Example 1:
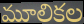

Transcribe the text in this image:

మూలికల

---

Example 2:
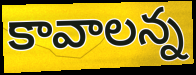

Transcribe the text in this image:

కావాలన్న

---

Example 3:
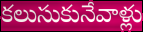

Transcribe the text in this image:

కలుసుకునేవాళ్లు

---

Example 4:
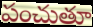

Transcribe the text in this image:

పంచుతూ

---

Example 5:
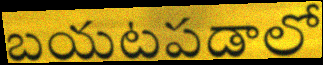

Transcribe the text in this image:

బయటపడాలో